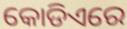
କୋଡିଏରେ